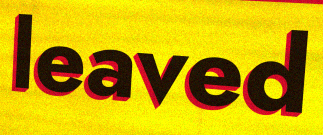
leaved